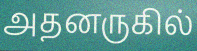
அதனருகில்